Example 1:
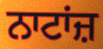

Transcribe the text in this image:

ਨਾਟਾਂਜ਼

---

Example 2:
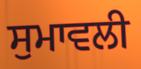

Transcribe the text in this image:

ਸੁਮਾਵਲੀ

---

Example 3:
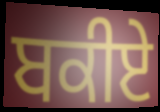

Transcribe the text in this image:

ਬਕੀਏ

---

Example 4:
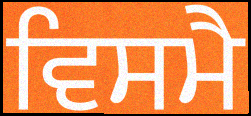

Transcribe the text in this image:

ਵਿਸਮੈ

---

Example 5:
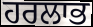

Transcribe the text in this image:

ਹਰਲਾਭ